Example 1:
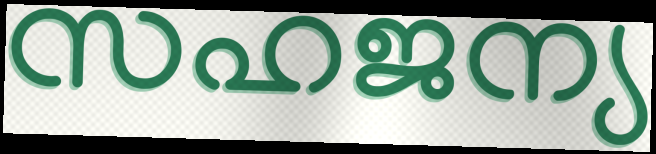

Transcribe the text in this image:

സഹജന്യ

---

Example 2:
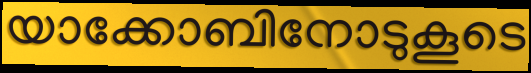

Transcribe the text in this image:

യാക്കോബിനോടുകൂടെ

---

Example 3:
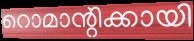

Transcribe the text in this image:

റൊമാന്റിക്കായി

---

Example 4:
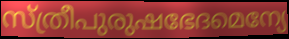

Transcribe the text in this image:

സ്ത്രീപുരുഷഭേദമെന്യേ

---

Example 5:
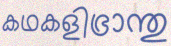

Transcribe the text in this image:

കഥകളിഭ്രാന്തു